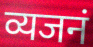
व्यजनं